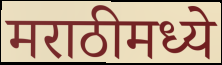
मराठीमध्ये